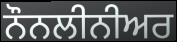
ਨੌਨਲੀਨੀਅਰ